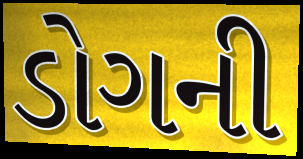
ડોગની